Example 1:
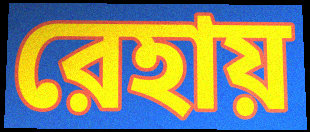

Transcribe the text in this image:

রেহায়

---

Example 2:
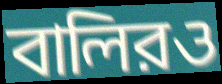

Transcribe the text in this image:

বালিরও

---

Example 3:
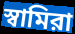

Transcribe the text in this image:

স্বামিরা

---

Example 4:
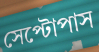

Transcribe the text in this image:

সেপ্টোপাস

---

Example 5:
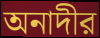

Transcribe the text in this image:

অনাদীর